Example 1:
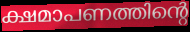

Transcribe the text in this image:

ക്ഷമാപണത്തിന്റെ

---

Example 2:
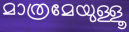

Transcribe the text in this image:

മാത്രമേയുള്ളൂ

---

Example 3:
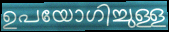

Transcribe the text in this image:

ഉപയോഗിച്ചുള്ള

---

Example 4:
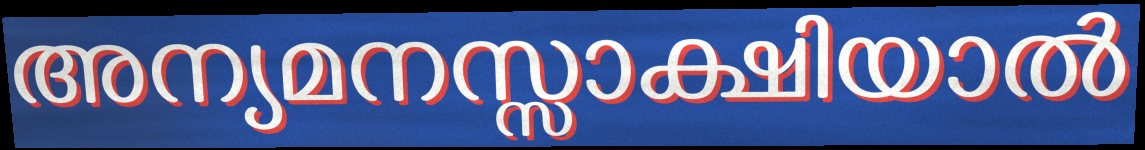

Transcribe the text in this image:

അന്യമനസ്സാക്ഷിയാൽ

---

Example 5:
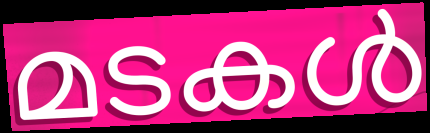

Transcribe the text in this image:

മടകൾ